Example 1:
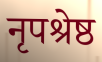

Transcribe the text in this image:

नृपश्रेष्ठ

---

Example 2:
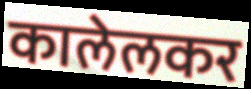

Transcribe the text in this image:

कालेलकर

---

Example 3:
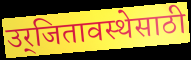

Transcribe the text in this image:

उर्जितावस्थेसाठी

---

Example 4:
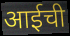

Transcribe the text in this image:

आईची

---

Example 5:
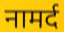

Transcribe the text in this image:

नामर्द